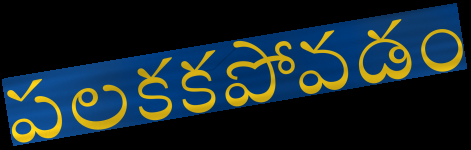
పలకకపోవడం